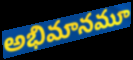
అభిమానమూ